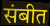
संबीत